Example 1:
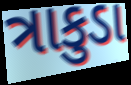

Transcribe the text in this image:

ત્રાકુડા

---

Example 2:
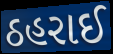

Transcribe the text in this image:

ઠહરાઈ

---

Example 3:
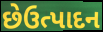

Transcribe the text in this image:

છેઉત્પાદન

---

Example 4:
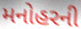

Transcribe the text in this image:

મનોહરની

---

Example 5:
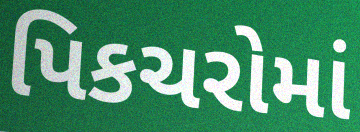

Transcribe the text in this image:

પિકચરોમાં